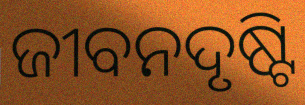
ଜୀବନଦୃଷ୍ଟି